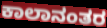
ಕಾಲಾನಂತರ